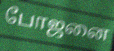
போஜனை